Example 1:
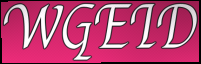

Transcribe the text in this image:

WGEID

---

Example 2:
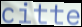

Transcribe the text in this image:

citte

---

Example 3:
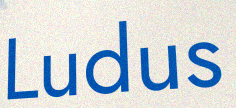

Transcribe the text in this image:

Ludus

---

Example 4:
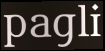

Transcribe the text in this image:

pagli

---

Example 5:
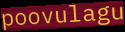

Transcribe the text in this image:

poovulagu